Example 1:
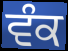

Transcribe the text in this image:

ਵੰਕ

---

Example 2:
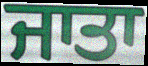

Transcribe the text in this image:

ਜਾਤਾ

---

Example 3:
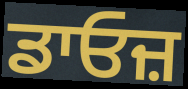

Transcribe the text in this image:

ਡਾਓਜ਼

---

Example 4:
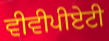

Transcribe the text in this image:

ਵੀਵੀਪੀਏਟੀ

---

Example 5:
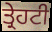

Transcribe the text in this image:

ਤ੍ਰੇਹਟੀ